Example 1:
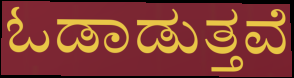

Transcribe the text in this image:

ಓಡಾಡುತ್ತವೆ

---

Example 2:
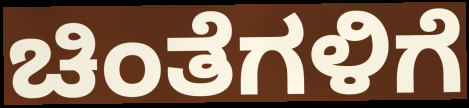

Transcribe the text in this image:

ಚಿಂತೆಗಳಿಗೆ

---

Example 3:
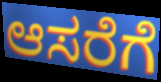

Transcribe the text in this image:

ಆಸರೆಗೆ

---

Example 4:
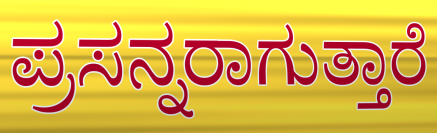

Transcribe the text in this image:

ಪ್ರಸನ್ನರಾಗುತ್ತಾರೆ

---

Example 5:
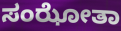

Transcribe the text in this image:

ಸಂಝೋತಾ